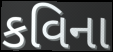
કવિના